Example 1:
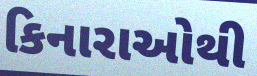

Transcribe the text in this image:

કિનારાઓથી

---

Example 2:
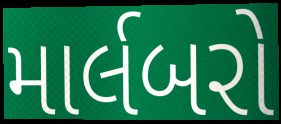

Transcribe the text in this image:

માર્લબરો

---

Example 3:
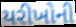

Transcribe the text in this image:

યરીખોની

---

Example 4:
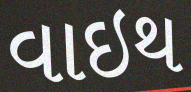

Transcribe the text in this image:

વાઇથ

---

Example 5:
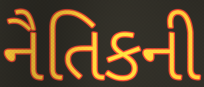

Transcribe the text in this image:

નૈતિકની